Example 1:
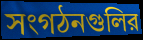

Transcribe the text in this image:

সংগঠনগুলির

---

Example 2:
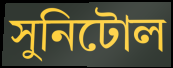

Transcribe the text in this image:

সুনিটোল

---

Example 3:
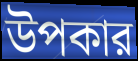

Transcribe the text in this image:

উপকার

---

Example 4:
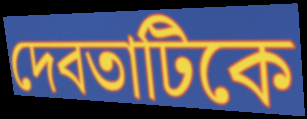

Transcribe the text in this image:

দেবতাটিকে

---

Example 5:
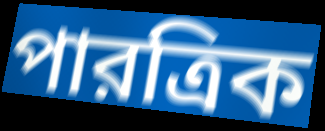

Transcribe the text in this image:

পারত্রিক